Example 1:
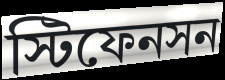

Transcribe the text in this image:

স্টিফেনসন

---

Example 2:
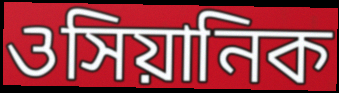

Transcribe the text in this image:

ওসিয়ানিক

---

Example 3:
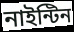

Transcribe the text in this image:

নাইন্টিন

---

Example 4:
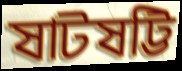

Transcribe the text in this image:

ষাটষট্টি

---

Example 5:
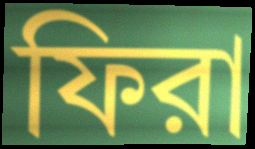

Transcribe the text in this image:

ফিরা